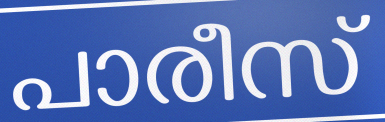
പാരീസ്